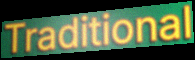
Traditional